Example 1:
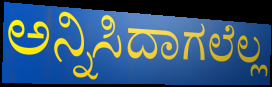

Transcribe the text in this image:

ಅನ್ನಿಸಿದಾಗಲೆಲ್ಲ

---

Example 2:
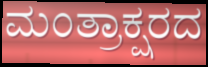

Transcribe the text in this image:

ಮಂತ್ರಾಕ್ಷರದ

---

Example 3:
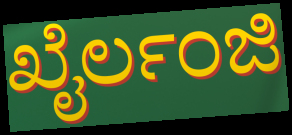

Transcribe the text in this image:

ಖೈರ್ಲಂಜಿ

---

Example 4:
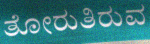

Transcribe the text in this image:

ತೋರುತಿರುವ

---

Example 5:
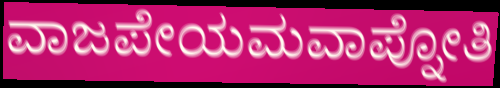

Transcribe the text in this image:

ವಾಜಪೇಯಮವಾಪ್ನೋತಿ